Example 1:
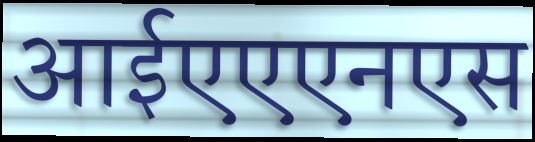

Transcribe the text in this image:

आईएएएनएस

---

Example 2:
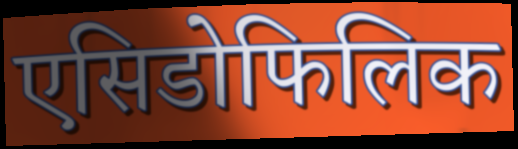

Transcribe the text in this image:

एसिडोफिलिक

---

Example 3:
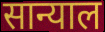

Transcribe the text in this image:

सान्याल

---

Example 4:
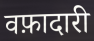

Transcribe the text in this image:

वफ़ादारी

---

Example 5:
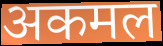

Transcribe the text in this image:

अकमल